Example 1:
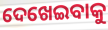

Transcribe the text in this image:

ଦେଖେଇବାକୁ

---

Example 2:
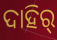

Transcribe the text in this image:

ଦାହିର୍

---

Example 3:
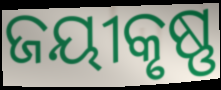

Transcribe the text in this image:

ଜୟୀକୃଷ୍ଣ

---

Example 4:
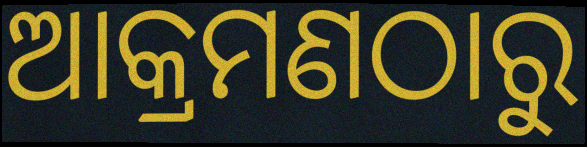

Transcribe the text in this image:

ଆକ୍ରମଣଠାରୁ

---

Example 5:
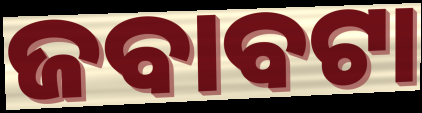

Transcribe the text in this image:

ଜବାବଟା